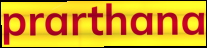
prarthana